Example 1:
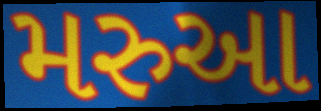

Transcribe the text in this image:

મરુઆ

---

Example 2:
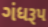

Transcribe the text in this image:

ગંધરૂપ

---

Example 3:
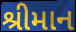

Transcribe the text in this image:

શ્રીમાન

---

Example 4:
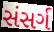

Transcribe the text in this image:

સંસર્ગ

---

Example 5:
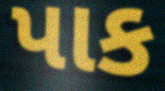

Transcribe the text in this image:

પાક